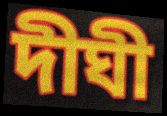
দীঘী